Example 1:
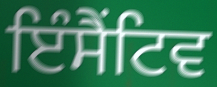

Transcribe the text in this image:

ਇੰਸੈਂਟਿਵ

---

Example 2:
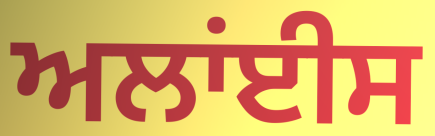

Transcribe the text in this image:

ਅਲਾਂਈਸ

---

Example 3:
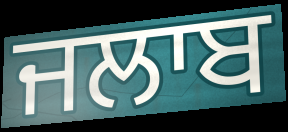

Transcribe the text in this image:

ਜਲਾਬ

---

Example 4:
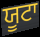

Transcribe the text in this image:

ਯੂਟਾ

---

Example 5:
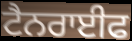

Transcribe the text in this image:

ਟੈਨਰਾਈਫ